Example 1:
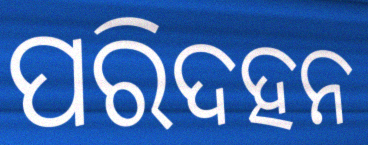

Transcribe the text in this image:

ପରିଦହନ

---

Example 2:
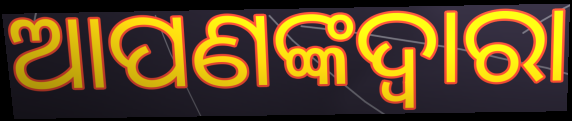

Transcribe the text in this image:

ଆପଣଙ୍କଦ୍ବାରା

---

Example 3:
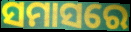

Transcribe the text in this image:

ସମାସରେ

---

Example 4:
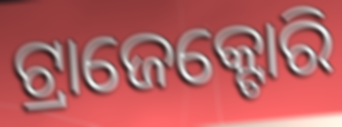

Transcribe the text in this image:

ଟ୍ରାଜେକ୍ଟୋରି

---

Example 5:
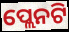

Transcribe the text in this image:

ପ୍ଲେନଟି